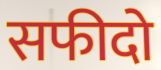
सफीदो